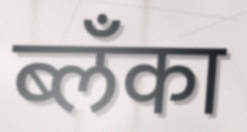
ब्लँका